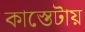
কাস্তেটায়